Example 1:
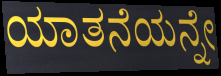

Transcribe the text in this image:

ಯಾತನೆಯನ್ನೇ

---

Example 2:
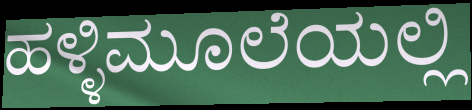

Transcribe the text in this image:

ಹಳ್ಳಿಮೂಲೆಯಲ್ಲಿ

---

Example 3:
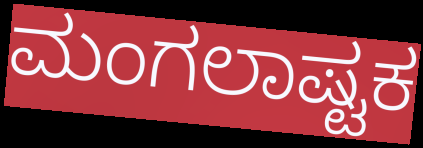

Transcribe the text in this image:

ಮಂಗಲಾಷ್ಟಕ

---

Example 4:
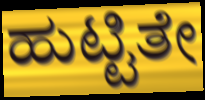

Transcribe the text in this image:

ಹುಟ್ಟಿತೇ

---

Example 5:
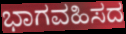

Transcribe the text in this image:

ಭಾಗವಹಿಸದ